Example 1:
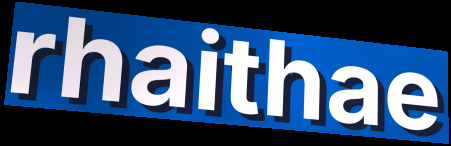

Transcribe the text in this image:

rhaithae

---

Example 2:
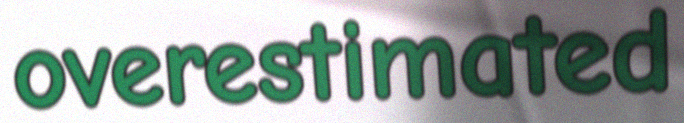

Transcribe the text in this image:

overestimated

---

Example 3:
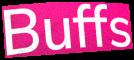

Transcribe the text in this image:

Buffs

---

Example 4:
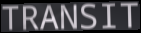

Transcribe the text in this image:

TRANSIT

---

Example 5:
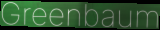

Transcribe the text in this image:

Greenbaum